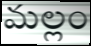
మల్లం